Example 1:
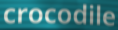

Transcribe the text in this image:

crocodile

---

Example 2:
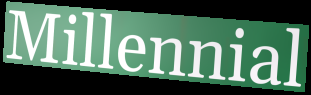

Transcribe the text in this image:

Millennial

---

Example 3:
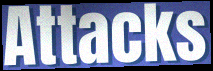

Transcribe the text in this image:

Attacks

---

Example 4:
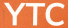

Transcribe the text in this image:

YTC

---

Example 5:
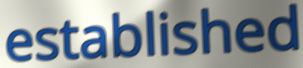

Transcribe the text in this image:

established